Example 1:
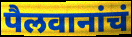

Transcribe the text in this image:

पैलवानांचं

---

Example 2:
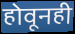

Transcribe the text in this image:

होवूनही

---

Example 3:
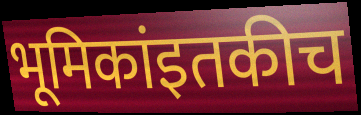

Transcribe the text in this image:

भूमिकांइतकीच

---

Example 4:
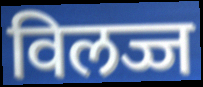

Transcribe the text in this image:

विलज्ज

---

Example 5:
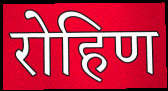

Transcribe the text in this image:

रोहिण